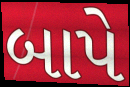
બાપે